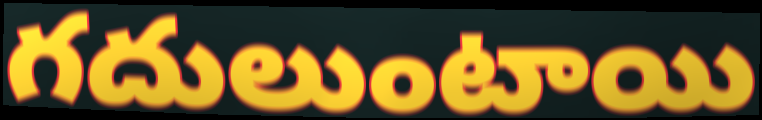
గదులుంటాయి